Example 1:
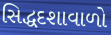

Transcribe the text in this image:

સિદ્ધદશાવાળો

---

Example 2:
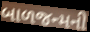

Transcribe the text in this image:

બાળજન્મની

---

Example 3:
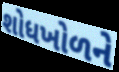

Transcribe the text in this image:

શોધખોળને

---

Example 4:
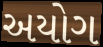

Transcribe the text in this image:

અયોગ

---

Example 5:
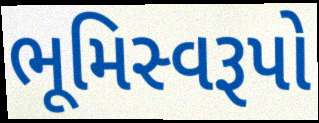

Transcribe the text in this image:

ભૂમિસ્વરૂપો